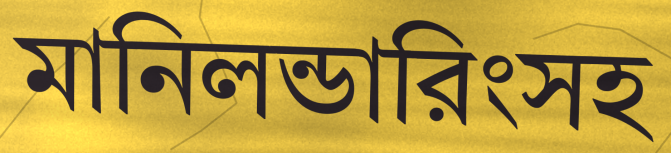
মানিলন্ডারিংসহ